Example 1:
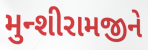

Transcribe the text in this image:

મુન્શીરામજીને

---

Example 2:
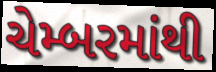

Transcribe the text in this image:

ચેમ્બરમાંથી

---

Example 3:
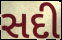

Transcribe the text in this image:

સદી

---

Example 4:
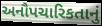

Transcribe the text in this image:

અનૌપચારિકતાનું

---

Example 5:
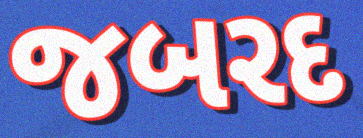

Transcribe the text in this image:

જબરદ